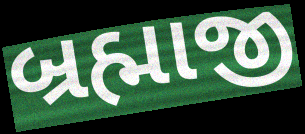
બ્રહ્માજી